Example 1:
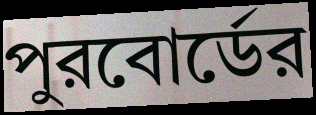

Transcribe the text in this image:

পুরবোর্ডের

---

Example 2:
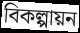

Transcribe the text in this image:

বিকল্পায়ন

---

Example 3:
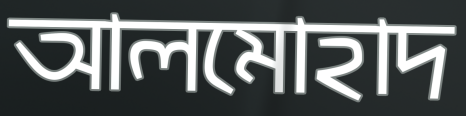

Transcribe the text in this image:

আলমোহাদ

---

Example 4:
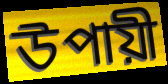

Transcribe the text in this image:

উপায়ী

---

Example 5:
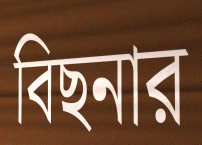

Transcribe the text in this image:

বিছনার